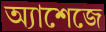
অ্যাশেজে